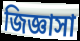
জিজ্ঞাসা